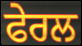
ਫੇਰਲ